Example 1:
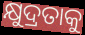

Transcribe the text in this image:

କ୍ଷୁଦ୍ରତାକୁ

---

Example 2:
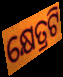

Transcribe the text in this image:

କ୍ଷେତ୍ରଟି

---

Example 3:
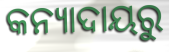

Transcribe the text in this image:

କନ୍ୟାଦାୟରୁ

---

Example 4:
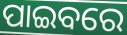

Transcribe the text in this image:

ପାଇବରେ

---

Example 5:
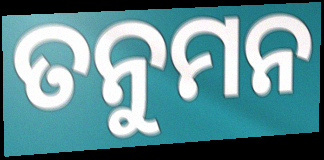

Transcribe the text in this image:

ତନୁମନ